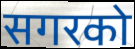
सगरको